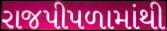
રાજપીપળામાંથી